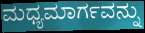
ಮಧ್ಯಮಾರ್ಗವನ್ನು